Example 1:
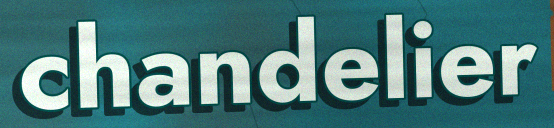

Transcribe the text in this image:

chandelier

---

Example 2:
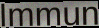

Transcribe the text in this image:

Immun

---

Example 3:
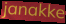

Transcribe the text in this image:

janakke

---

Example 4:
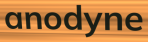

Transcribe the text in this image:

anodyne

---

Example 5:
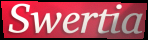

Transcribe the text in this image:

Swertia